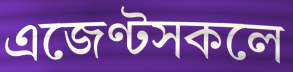
এজেণ্টসকলে